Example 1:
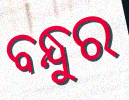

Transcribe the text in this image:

ବନ୍ଧୁର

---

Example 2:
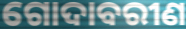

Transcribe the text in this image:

ଗୋଦାବରୀଣ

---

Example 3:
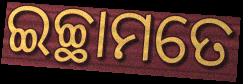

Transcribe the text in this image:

ଇଚ୍ଛାମତେ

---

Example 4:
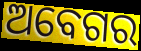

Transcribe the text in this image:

ଅବେଗର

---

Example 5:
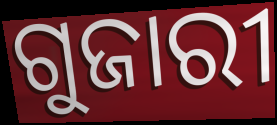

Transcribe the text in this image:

ଗୁଜାରୀ